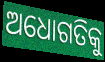
ଅଧୋଗତିକୁ